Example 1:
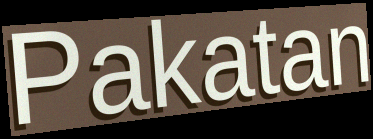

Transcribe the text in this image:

Pakatan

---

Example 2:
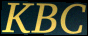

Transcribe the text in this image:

KBC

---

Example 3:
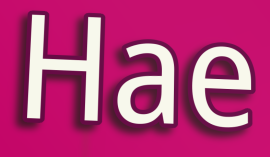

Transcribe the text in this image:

Hae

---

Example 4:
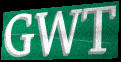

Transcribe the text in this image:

GWT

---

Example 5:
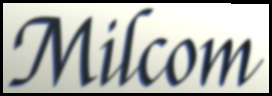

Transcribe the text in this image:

Milcom